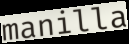
manilla